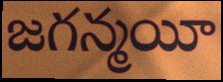
జగన్మయీ